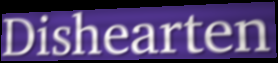
Dishearten